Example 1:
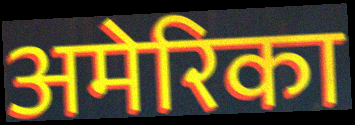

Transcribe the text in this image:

अमेरिका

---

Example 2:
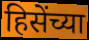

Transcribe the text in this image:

हिसेंच्या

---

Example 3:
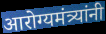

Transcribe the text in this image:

आरोग्यमंत्र्यांनी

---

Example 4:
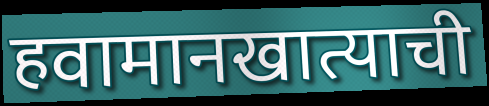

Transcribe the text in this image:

हवामानखात्याची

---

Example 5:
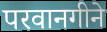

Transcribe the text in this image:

परवानगीने